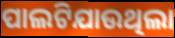
ପାଲଟିଯାଉଥିଲା